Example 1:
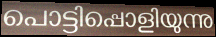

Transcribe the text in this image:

പൊട്ടിപ്പൊളിയുന്നു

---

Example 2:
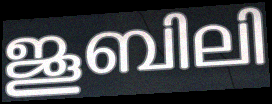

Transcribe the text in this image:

ജൂബിലി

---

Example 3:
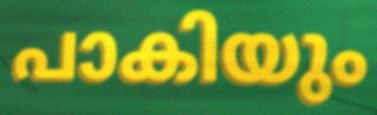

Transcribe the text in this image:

പാകിയും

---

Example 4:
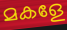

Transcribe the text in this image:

മകളേ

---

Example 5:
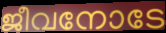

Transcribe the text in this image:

ജീവനോടേ